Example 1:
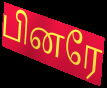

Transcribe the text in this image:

பினரே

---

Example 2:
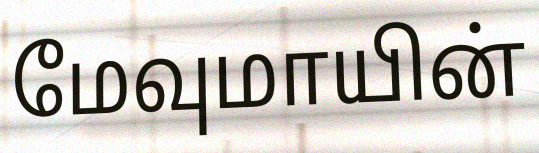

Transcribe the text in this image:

மேவுமாயின்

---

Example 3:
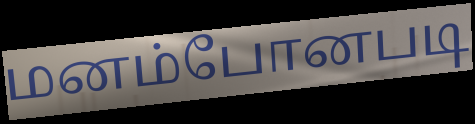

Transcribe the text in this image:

மனம்போனபடி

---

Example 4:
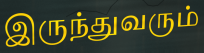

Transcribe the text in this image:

இருந்துவரும்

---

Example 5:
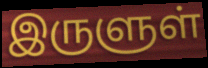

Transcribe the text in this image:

இருளுள்